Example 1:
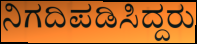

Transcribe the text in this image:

ನಿಗದಿಪಡಿಸಿದ್ದರು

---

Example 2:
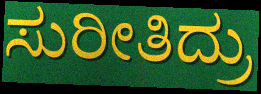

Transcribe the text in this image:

ಸುರೀತಿದ್ರು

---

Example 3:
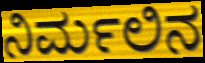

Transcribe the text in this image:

ನಿರ್ಮಲಿನ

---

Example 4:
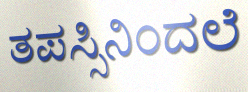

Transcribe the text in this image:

ತಪಸ್ಸಿನಿಂದಲೆ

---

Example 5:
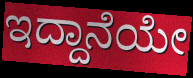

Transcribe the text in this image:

ಇದ್ದಾನೆಯೇ